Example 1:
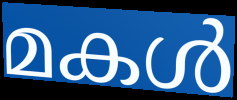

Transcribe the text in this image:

മകൾ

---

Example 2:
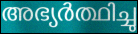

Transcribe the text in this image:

അഭ്യർത്ഥിച്ചു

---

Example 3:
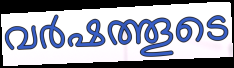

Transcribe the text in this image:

വർഷത്തൂടെ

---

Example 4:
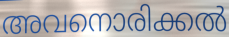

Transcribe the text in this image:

അവനൊരിക്കൽ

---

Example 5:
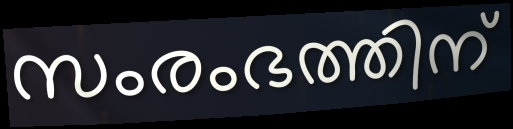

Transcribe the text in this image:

സംരംഭത്തിന്